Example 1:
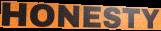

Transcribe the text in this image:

HONESTY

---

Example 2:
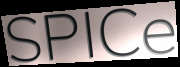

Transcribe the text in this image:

SPICe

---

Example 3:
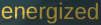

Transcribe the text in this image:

energized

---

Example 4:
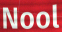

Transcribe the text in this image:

Nool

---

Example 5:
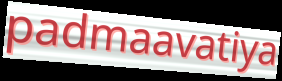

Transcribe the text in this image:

padmaavatiya